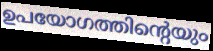
ഉപയോഗത്തിന്റെയും